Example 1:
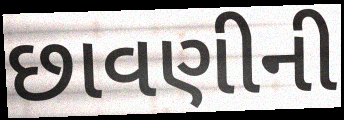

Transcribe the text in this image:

છાવણીની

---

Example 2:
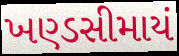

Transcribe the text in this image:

ખણ્ડસીમાયં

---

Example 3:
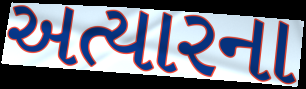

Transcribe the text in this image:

અત્યારના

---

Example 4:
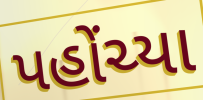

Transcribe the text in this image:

પહોંચ્યા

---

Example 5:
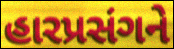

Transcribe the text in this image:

હારપ્રસંગને